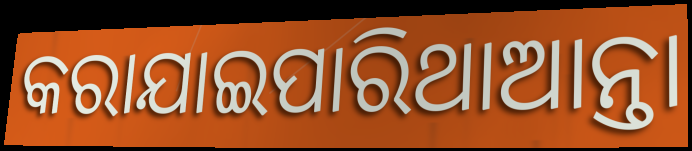
କରାଯାଇପାରିଥାଆନ୍ତା